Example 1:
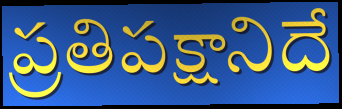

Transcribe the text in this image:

ప్రతిపక్షానిదే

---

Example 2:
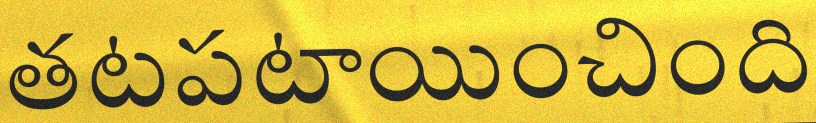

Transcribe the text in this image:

తటపటాయించింది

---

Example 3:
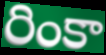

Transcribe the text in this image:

రింకా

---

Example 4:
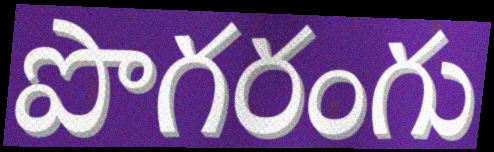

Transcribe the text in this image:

పొగరంగు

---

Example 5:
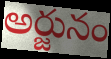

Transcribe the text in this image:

అర్జునం